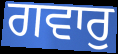
ਗਵਾਰੁ